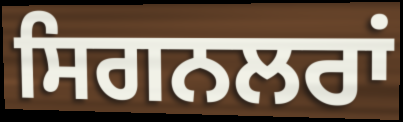
ਸਿਗਨਲਰਾਂ